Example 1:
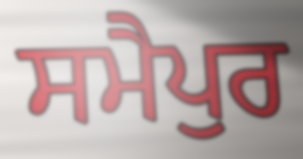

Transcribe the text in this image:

ਸਮੈਪੁਰ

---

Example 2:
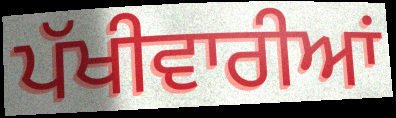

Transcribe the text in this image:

ਪੱਖੀਵਾਰੀਆਂ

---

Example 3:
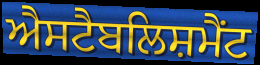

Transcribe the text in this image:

ਐਸਟੈਬਲਿਸ਼ਮੈਂਟ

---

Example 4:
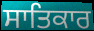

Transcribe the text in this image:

ਸਾਤਿਕਾਰ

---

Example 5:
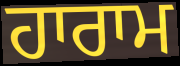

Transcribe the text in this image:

ਹਾਰਾਮ